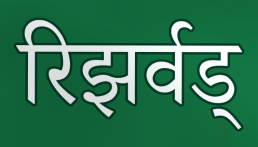
रिझर्वड्